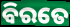
ବିରତେ